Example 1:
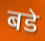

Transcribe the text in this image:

बडे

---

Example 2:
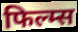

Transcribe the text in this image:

फिल्म्स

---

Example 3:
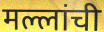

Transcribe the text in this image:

मल्लांची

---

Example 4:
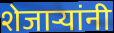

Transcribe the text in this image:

शेजाऱ्यांनी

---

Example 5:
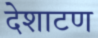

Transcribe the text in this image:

देशाटण